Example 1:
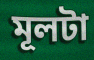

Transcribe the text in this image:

মূলটা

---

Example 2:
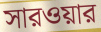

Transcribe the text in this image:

সারওয়ার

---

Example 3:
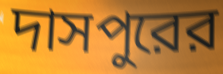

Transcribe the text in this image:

দাসপুরের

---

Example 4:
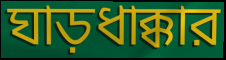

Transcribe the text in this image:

ঘাড়ধাক্কার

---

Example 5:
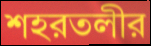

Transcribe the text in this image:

শহরতলীর